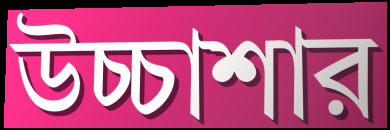
উচ্চাশার